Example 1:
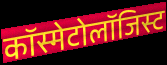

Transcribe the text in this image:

कॉस्मेटोलॉजिस्ट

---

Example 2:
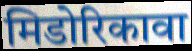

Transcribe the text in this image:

मिडोरिकावा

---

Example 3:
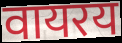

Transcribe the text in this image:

वायरय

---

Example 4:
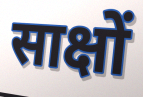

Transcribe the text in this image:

साक्षों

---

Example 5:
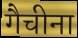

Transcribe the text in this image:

गैचीना